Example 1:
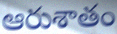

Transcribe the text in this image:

ఆరుశాతం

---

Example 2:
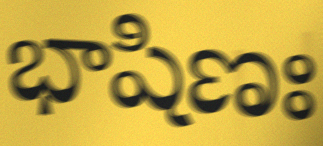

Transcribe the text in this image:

భాషిణః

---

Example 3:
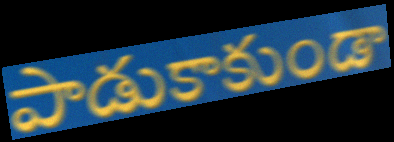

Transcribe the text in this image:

పాడుకాకుండా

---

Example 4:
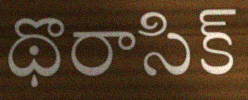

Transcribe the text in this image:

థొరాసిక్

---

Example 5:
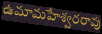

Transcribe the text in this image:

ఉమామహేశ్వరరావు